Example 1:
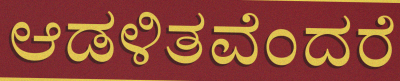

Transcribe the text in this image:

ಆಡಳಿತವೆಂದರೆ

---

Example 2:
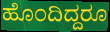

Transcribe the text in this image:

ಹೊಂದಿದ್ದರೂ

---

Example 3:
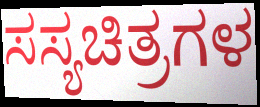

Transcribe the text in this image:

ಸಸ್ಯಚಿತ್ರಗಳ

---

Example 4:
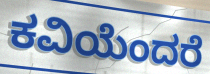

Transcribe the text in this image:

ಕವಿಯೆಂದರೆ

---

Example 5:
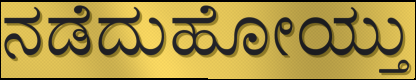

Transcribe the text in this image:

ನಡೆದುಹೋಯ್ತು